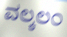
ವಲ್ಕಲಂ